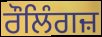
ਰੌਲਿੰਗਜ਼